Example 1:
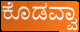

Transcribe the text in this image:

ಕೊಡವ್ವಾ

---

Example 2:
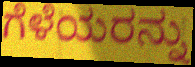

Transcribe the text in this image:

ಗೆಳೆಯರನ್ನು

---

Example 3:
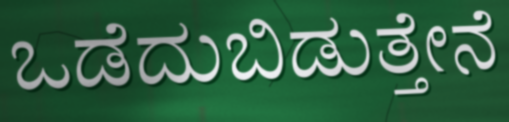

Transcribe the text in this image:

ಒಡೆದುಬಿಡುತ್ತೇನೆ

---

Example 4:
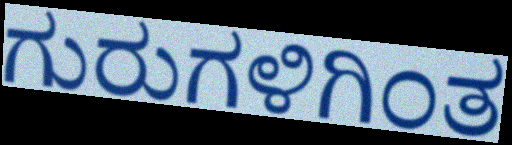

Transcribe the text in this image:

ಗುರುಗಳಿಗಿಂತ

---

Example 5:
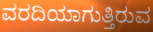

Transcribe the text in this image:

ವರದಿಯಾಗುತ್ತಿರುವ